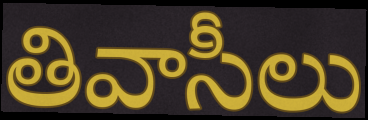
తివాసీలు